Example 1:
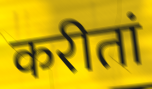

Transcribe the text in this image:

करीतां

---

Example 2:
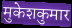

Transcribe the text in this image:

मुकेशकुमार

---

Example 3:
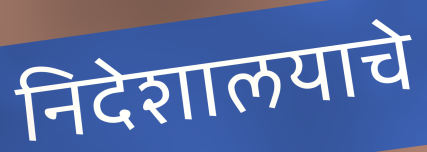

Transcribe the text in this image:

निदेशालयाचे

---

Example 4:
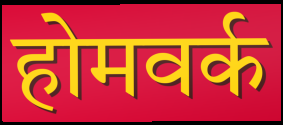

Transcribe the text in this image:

होमवर्क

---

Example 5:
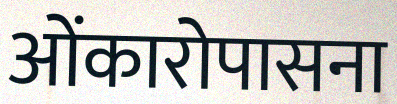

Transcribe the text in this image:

ओंकारोपासना